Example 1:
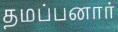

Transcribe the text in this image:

தமப்பனார்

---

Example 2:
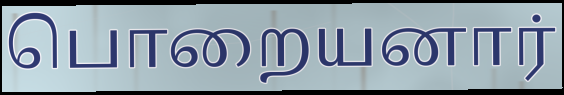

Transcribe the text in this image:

பொறையனார்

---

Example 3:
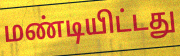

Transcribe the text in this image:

மண்டியிட்டது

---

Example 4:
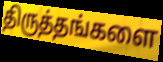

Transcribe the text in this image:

திருத்தங்களை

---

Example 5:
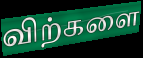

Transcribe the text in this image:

விற்களை